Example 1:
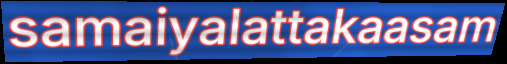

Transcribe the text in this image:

samaiyalattakaasam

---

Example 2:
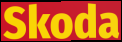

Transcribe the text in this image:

Skoda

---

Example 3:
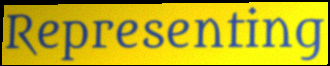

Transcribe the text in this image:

Representing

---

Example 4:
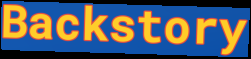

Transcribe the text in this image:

Backstory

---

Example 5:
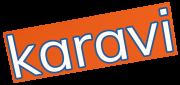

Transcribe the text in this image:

karavi